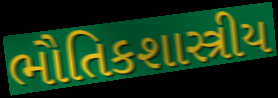
ભૌતિકશાસ્ત્રીય